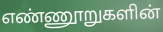
எண்ணூறுகளின்